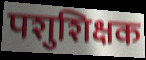
पशुशिक्षक